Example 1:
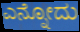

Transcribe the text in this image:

ಎನ್ನೋದು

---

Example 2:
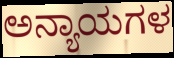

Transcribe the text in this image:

ಅನ್ಯಾಯಗಳ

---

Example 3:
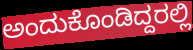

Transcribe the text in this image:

ಅಂದುಕೊಂಡಿದ್ದರಲ್ಲಿ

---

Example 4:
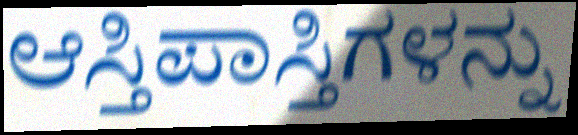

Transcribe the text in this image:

ಆಸ್ತಿಪಾಸ್ತಿಗಳನ್ನು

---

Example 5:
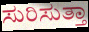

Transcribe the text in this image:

ಸುರಿಸುತ್ತಾ